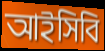
আইসিবি